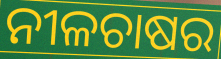
ନୀଳଚାଷର